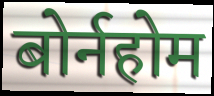
बोर्नहोम